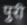
पुरी